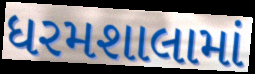
ધરમશાલામાં